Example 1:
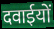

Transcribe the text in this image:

दवाईयों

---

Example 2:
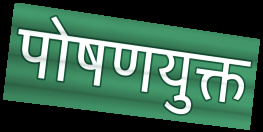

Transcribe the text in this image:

पोषणयुक्त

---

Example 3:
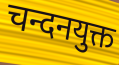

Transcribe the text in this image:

चन्दनयुक्त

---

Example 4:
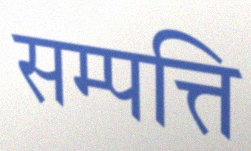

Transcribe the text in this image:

सम्पत्ति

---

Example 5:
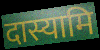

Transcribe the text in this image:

दास्यामि